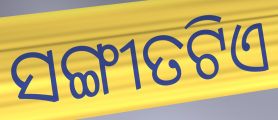
ସଙ୍ଗୀତଟିଏ